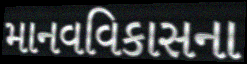
માનવવિકાસના